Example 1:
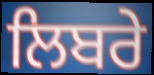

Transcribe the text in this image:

ਲਿਬਰੇ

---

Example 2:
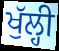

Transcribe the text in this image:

ਖੁੱਲ੍ਹੀ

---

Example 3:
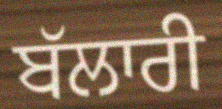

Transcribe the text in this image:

ਬੱਲਾਰੀ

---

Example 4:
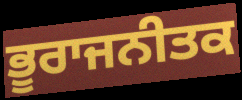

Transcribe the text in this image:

ਭੂਰਾਜਨੀਤਕ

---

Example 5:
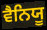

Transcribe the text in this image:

ਵੈਨਿਯੂ